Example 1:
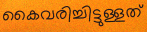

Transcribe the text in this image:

കൈവരിച്ചിട്ടുള്ളത്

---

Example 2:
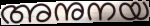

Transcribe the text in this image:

അനുനയ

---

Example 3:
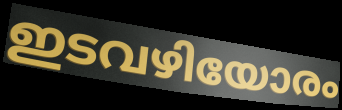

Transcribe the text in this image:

ഇടവഴിയോരം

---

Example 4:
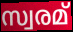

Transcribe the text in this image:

സ്വരമ്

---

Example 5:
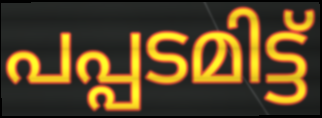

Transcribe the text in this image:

പപ്പടമിട്ട്